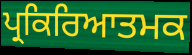
ਪ੍ਰਕਿਰਿਆਤਮਕ